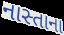
નાસ્તાના